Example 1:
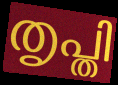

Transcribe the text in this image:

തൃപ്തി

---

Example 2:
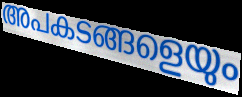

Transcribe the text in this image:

അപകടങ്ങളെയും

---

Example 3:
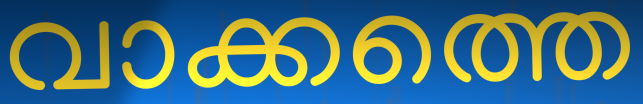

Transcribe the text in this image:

വാക്കത്തെ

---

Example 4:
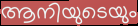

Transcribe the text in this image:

ആനിയുടെയും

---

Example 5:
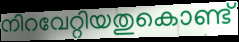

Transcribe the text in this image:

നിറവേറ്റിയതുകൊണ്ട്